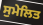
ਸੁਮੇਲਿਤ